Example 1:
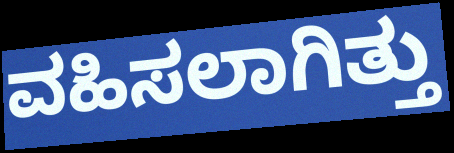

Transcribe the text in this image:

ವಹಿಸಲಾಗಿತ್ತು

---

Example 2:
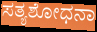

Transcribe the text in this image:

ಸತ್ಯಶೋಧನಾ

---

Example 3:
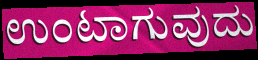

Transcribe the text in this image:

ಉಂಟಾಗುವುದು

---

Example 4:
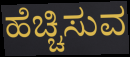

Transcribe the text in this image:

ಹೆಚ್ಚಿಸುವ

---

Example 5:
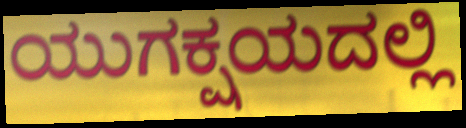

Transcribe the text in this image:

ಯುಗಕ್ಷಯದಲ್ಲಿ